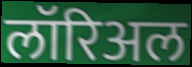
लॉरिअल